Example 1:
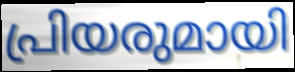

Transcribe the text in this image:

പ്രിയരുമായി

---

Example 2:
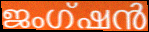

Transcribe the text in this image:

ജംഗ്ഷൻ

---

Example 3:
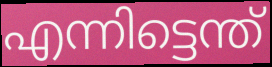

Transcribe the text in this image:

എന്നിട്ടെന്ത്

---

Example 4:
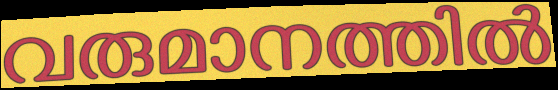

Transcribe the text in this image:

വരുമാനത്തിൽ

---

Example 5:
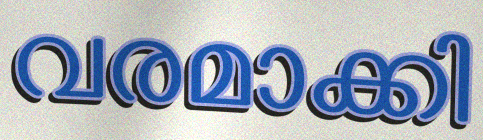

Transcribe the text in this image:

വരമാക്കി